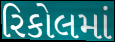
રિકોલમાં